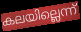
കലയില്ലെന്ന്